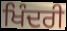
ਖਿੰਦਰੀ